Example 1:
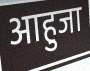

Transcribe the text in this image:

आहुजा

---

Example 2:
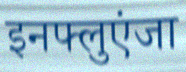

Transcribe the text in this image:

इनफ्लुएंजा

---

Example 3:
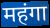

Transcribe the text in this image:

महंगा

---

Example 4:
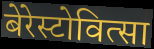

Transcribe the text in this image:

बेरेस्टोवित्सा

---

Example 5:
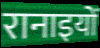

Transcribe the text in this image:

रानाइयों